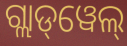
ଗ୍ଲାଡ୍‌ୱେଲ୍